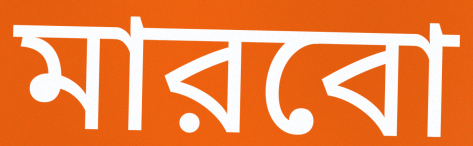
মারবো